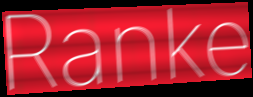
Ranke